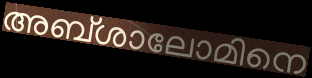
അബ്ശാലോമിനെ